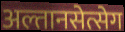
अल्तानसेत्सेग